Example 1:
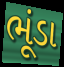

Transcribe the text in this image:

ભૂંડા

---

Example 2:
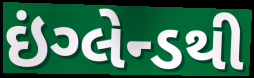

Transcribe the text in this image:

ઇંગ્લેન્ડથી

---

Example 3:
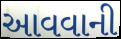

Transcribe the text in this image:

આવવાની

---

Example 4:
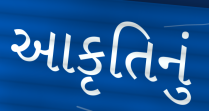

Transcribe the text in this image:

આકૃતિનું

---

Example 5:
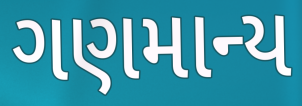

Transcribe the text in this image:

ગણમાન્ય